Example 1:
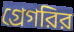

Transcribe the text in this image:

গ্রেগরির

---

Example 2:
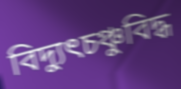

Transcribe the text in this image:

বিদ্যুৎচঞ্চুবিদ্ধ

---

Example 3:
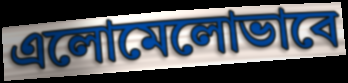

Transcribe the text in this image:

এলোমেলোভাবে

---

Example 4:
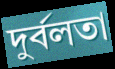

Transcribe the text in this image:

দুর্বলতা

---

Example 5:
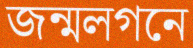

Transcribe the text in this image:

জন্মলগনে